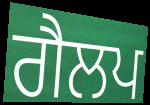
ਗੈਲਪ